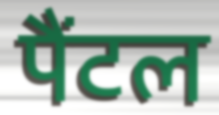
पैंटल